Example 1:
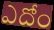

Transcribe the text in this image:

ఎదోం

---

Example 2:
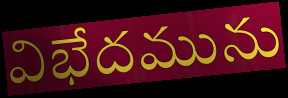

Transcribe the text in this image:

విభేదమును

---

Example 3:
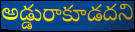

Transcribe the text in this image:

అడ్డురాకూడదని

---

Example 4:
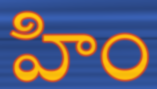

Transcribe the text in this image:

హిం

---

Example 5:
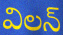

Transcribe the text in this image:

విలన్